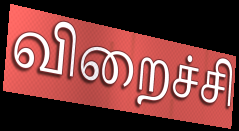
விறைச்சி